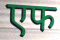
एफ